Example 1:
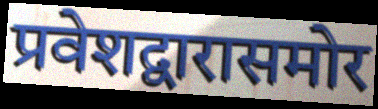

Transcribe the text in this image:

प्रवेशद्वारासमोर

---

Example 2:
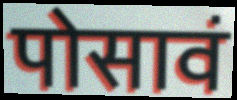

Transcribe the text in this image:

पोसावं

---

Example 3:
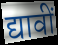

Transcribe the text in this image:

द्यावीं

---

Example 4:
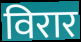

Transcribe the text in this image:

विरार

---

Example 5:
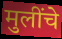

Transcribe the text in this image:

मुलींचे